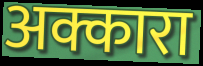
अक्कारा